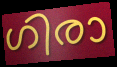
ഗിരാ